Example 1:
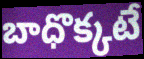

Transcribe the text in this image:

బాధొక్కటే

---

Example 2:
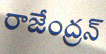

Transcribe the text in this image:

రాజేంద్రన్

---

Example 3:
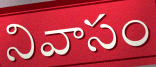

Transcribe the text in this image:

నివాసం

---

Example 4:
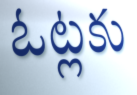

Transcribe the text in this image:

ఓట్లకు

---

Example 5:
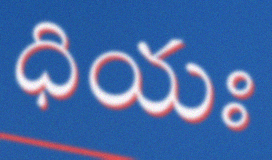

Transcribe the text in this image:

ధియః